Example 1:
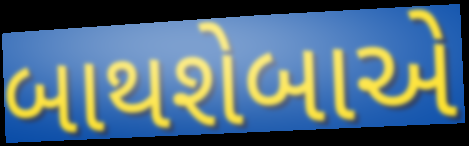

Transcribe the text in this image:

બાથશેબાએ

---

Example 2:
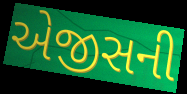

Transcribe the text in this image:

એજીસની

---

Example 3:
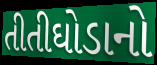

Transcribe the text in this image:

તીતીઘોડાનો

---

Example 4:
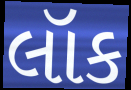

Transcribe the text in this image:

લૉક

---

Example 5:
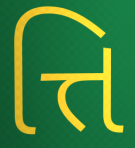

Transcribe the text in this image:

ત્તિ